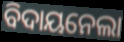
ବିଦାୟନେଲା